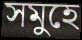
সমুহে